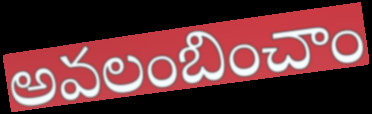
అవలంబించాం